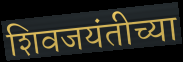
शिवजयंतीच्या